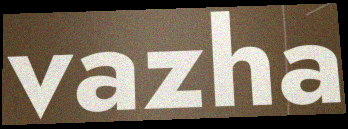
vazha